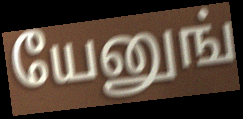
யேனுங்